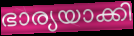
ഭാര്യയാക്കി